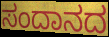
ಸಂದಾನದ